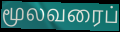
மூலவரைப்